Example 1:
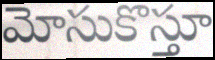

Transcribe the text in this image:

మోసుకొస్తూ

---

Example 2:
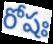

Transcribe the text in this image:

రోషః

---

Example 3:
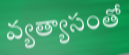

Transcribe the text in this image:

వ్యత్యాసంతో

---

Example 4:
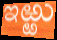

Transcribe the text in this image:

ఇఱ్ఱు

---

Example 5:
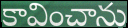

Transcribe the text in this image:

కావించాను